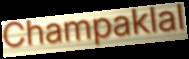
Champaklal